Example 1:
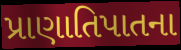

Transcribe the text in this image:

પ્રાણાતિપાતના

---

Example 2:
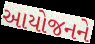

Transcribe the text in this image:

આયોજનને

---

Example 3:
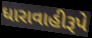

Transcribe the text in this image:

ધારાવાહીરૂપે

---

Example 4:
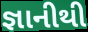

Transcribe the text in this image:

જ્ઞાનીથી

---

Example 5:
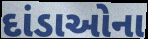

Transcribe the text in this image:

દાંડાઓના